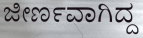
ಜೀರ್ಣವಾಗಿದ್ದ